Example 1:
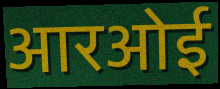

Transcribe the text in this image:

आरओई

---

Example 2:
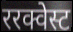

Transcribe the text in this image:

ररक्वेस्ट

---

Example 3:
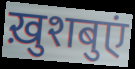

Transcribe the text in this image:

ख़ुशबुएं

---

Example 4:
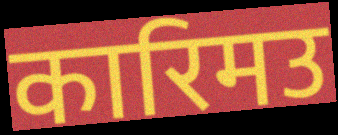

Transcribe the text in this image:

कारिमउ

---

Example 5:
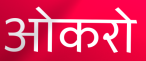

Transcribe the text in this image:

ओकरो